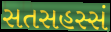
સતસહસ્સં